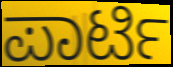
ಪಾರ್ಟಿ